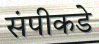
संपीकडे